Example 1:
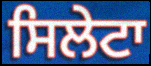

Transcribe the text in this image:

ਸਿਲੇਟਾ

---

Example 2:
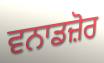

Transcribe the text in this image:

ਵਨਾਡਜ਼ੋਰ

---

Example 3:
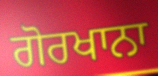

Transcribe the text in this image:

ਗੋਰਖਾਨਾ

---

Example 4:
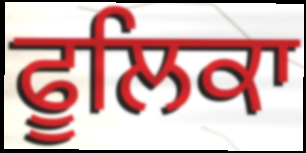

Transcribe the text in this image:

ਫੂਲਿਕਾ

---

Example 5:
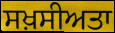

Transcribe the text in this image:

ਸਖ਼ਸੀਅਤਾ